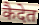
कैदेत